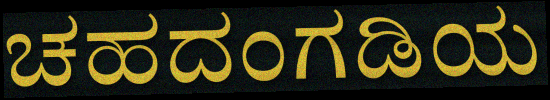
ಚಹದಂಗಡಿಯ